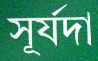
সূর্যদা